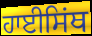
ਹਾਈਸਿਂਥ